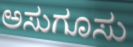
ಅಸುಗೂಸು